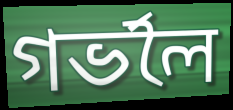
গৰ্ভলৈ